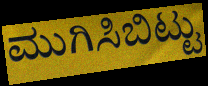
ಮುಗಿಸಿಬಿಟ್ಟು